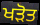
ਖੜੋਤ